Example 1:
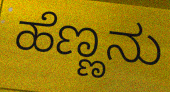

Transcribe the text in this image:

ಹೆಣ್ಣನು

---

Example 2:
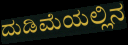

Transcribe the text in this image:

ದುಡಿಮೆಯಲ್ಲಿನ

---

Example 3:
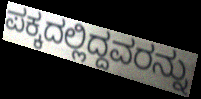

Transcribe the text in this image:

ಪಕ್ಕದಲ್ಲಿದ್ದವರನ್ನು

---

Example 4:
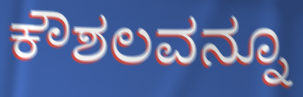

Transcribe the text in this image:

ಕೌಶಲವನ್ನೂ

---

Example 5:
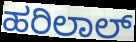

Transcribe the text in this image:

ಹರಿಲಾಲ್